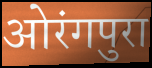
ओरंगपुरा